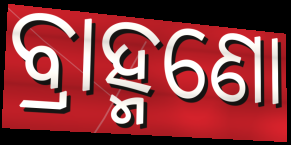
ବ୍ରାହ୍ମଣୋ